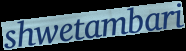
shwetambari